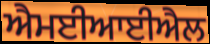
ਐਮਈਆਈਐਲ